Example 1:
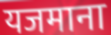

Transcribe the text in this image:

यजमाना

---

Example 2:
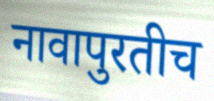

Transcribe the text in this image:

नावापुरतीच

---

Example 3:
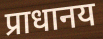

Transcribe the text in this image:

प्राधानय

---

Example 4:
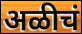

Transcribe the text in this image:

अळीचं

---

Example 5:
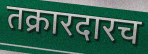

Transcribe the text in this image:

तक्रारदारच